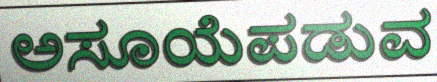
ಅಸೂಯೆಪಡುವ